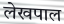
लेखपाल